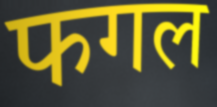
फगल